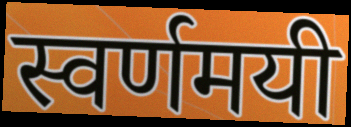
स्वर्णमयी